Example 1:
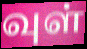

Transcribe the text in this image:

வுள்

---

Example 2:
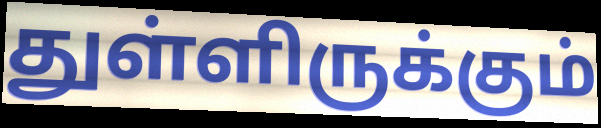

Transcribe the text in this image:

துள்ளிருக்கும்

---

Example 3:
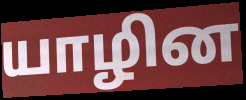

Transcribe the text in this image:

யாழின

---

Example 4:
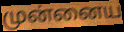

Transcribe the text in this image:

முன்னைய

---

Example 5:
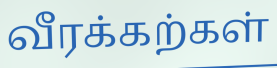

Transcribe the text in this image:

வீரக்கற்கள்